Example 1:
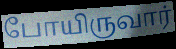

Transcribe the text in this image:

போயிருவார்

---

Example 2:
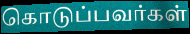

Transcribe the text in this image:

கொடுப்பவர்கள்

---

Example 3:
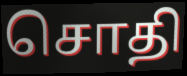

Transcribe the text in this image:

சொதி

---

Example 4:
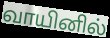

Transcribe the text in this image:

வாயினில்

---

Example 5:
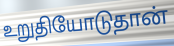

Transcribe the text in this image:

உறுதியோடுதான்